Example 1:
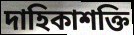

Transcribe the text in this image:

দাহিকাশক্তি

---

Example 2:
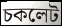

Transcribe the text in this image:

চকলেট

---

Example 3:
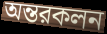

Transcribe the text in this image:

অন্তরকলন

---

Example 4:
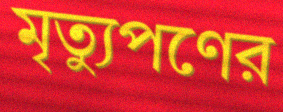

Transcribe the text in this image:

মৃত্যুপণের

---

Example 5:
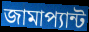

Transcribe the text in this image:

জামাপ্যান্ট